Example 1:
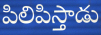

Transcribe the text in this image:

పిలిపిస్తాడు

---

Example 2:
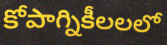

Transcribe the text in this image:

కోపాగ్నికీలలలో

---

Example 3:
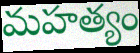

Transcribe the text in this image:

మహత్యం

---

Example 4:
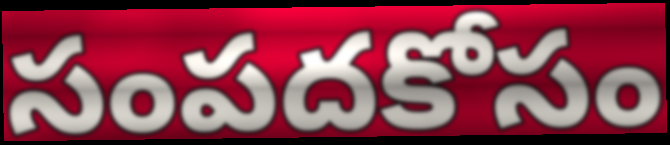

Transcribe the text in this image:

సంపదకోసం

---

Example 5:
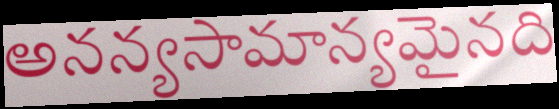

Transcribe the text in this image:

అనన్యసామాన్యమైనది